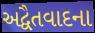
અદ્વૈતવાદના